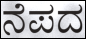
ನೆಪದ